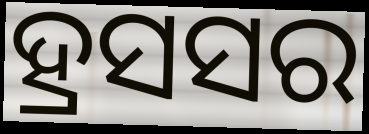
ହ୍ରସସର